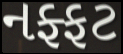
નફ્ફટ